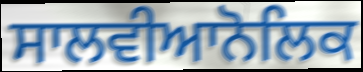
ਸਾਲਵੀਆਨੋਲਿਕ